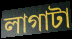
লাগাটা